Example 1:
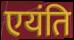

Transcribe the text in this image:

एयंति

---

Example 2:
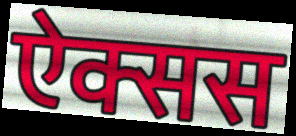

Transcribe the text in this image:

ऐक्सस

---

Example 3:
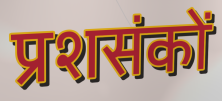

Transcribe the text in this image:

प्रशसंकों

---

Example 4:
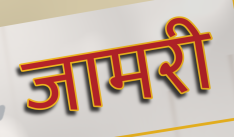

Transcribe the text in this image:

जामरी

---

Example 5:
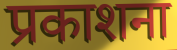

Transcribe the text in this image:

प्रकाशना